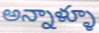
అన్నాళ్ళూ